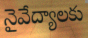
నైవేద్యాలకు